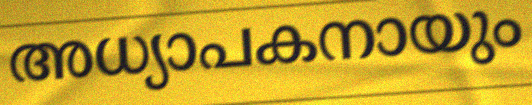
അധ്യാപകനായും